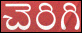
చెరిగి